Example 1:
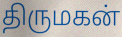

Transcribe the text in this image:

திருமகன்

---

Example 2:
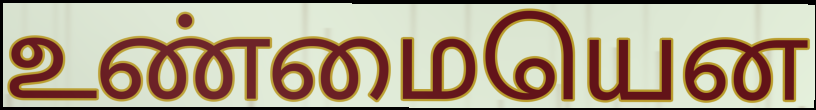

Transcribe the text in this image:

உண்மையென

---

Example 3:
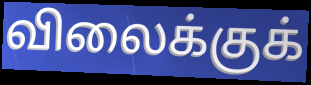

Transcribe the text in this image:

விலைக்குக்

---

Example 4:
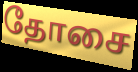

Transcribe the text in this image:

தோசை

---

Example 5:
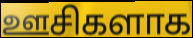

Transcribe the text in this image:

ஊசிகளாக